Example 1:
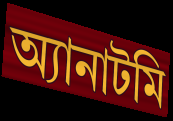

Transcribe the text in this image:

অ্যানাটমি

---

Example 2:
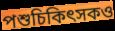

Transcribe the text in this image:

পশুচিকিৎসকও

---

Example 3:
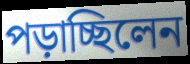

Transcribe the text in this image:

পড়াচ্ছিলেন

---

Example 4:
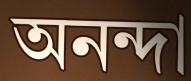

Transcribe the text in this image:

অনন্দা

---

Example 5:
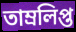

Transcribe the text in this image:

তাম্রলিপ্ত